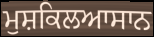
ਮੁਸ਼ਕਿਲਆਸਾਨ